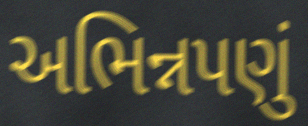
અભિન્નપણું